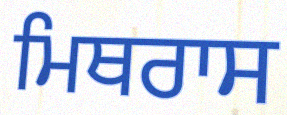
ਮਿਥਰਾਸ